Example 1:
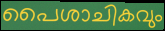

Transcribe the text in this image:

പൈശാചികവും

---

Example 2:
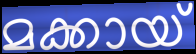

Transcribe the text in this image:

മക്കായ്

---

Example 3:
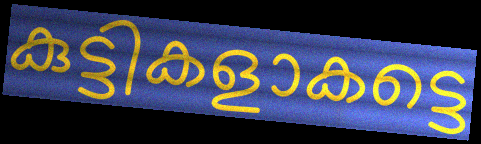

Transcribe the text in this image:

കുട്ടികളാകട്ടെ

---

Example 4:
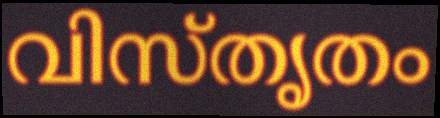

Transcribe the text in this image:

വിസ്തൃതം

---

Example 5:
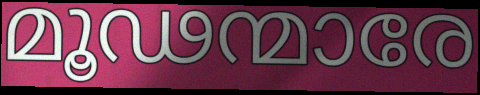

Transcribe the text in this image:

മൂഢന്മാരേ